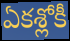
ఏకశ్లోకీ